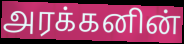
அரக்கனின்